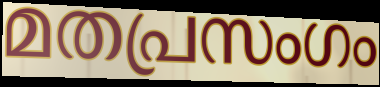
മതപ്രസംഗം